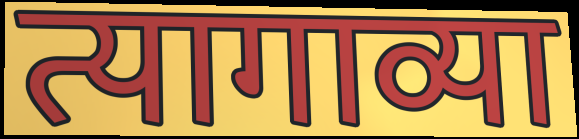
त्यागाव्या